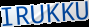
IRUKKU